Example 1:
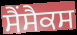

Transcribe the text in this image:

ਸੈਂਸੈਕਸ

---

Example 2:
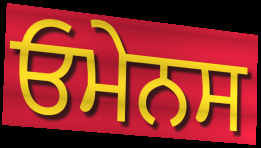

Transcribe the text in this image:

ਓਮੇਨਸ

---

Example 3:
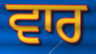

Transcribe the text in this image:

ਵਾਰ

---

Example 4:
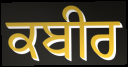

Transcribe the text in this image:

ਕਬੀਰ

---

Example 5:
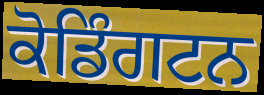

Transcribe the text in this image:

ਕੋਡਿੰਗਟਨ